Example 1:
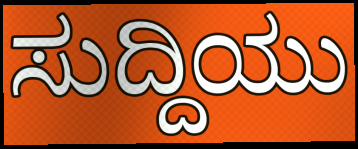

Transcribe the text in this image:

ಸುದ್ದಿಯು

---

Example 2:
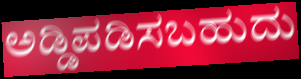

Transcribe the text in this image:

ಅಡ್ಡಿಪಡಿಸಬಹುದು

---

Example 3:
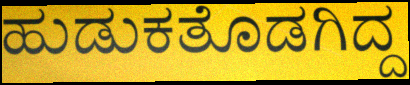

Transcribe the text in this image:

ಹುಡುಕತೊಡಗಿದ್ದ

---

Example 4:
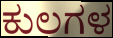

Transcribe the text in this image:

ಕುಲಗಳ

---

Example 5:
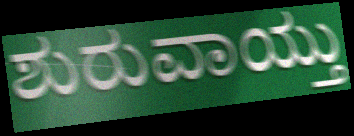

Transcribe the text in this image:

ಶುರುವಾಯ್ತು